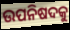
ଉପନିଷଦକୁ